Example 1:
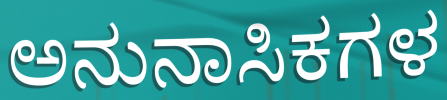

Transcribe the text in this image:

ಅನುನಾಸಿಕಗಳ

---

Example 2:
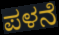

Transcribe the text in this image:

ಪಳನೆ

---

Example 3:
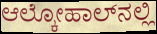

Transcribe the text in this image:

ಆಲ್ಕೋಹಾಲ್‌ನಲ್ಲಿ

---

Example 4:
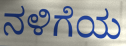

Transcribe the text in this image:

ನಳಿಗೆಯ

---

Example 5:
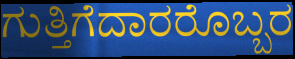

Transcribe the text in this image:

ಗುತ್ತಿಗೆದಾರರೊಬ್ಬರ